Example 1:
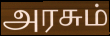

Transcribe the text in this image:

அரசும்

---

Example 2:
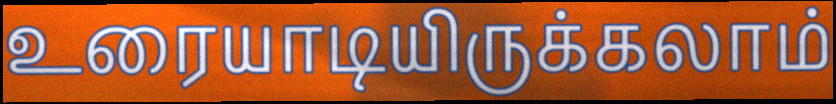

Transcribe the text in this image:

உரையாடியிருக்கலாம்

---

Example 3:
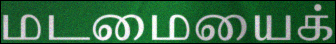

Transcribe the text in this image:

மடமையைக்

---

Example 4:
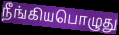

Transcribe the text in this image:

நீங்கியபொழுது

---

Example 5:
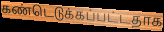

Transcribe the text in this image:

கண்டெடுக்கப்பட்டதாக